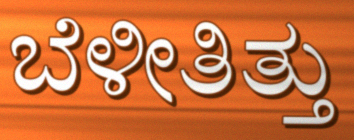
ಬೆಳೀತಿತ್ತು